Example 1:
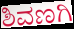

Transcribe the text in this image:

ಶಿವಣಗಿ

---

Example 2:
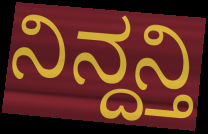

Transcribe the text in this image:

ನಿನ್ದನ್ತಿ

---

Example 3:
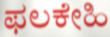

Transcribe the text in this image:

ಫಲಕೇಹಿ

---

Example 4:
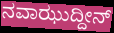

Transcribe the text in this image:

ನವಾಝುದ್ದೀನ್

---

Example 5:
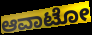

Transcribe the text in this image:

ಆವಾಟೋ